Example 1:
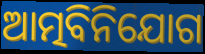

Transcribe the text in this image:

ଆତ୍ମବିନିଯୋଗ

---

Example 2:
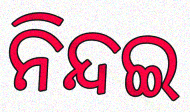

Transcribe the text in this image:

ନିନ୍ଦଇ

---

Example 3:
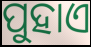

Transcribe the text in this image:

ପୁହାଏ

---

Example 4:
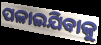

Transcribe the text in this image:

ପଳାଇଯିବାକୁ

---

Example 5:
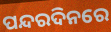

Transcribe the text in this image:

ପନ୍ଦରଦିନରେ